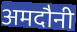
अमदौनी